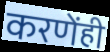
करणेंही